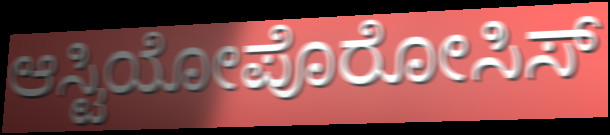
ಆಸ್ಟಿಯೋಪೊರೋಸಿಸ್